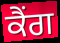
ਕੈਂਗ